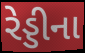
રેડ્ડીના